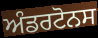
ਅੰਡਰਟੋਨਸ